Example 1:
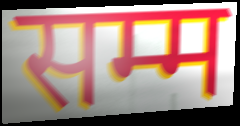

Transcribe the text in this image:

सम्म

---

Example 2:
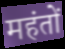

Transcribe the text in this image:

महंतों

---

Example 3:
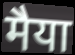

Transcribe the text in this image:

मैया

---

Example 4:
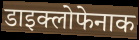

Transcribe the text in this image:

डाइक्लोफेनाक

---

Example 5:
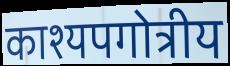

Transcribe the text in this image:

काश्यपगोत्रीय